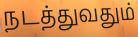
நடத்துவதும்